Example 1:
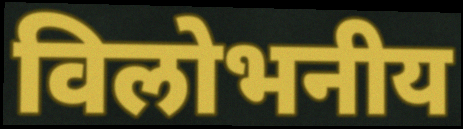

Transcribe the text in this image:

विलोभनीय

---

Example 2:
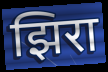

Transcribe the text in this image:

झिरा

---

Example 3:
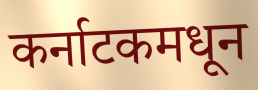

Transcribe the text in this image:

कर्नाटकमधून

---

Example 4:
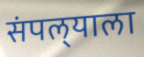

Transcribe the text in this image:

संपल्याला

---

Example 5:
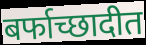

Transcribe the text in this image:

बर्फाच्छादीत